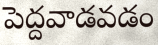
పెద్దవాడవడం